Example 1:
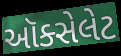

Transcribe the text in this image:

ઑક્સેલેટ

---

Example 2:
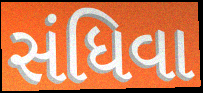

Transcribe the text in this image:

સંધિવા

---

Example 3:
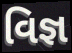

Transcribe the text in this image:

વિજ્ઞ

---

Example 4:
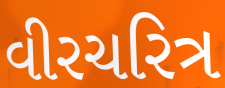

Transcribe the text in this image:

વીરચરિત્ર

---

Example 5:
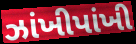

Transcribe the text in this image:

ઝાંખીપાંખી